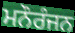
ਮਨੌਰੰਜਨ